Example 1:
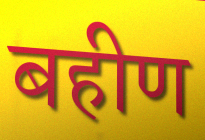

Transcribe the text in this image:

बहीण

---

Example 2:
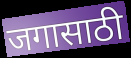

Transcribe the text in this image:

जगासाठी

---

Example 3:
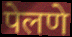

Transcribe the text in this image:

पेलणे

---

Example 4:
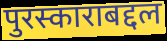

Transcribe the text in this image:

पुरस्काराबद्दल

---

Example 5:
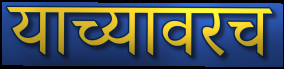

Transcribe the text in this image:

याच्यावरच